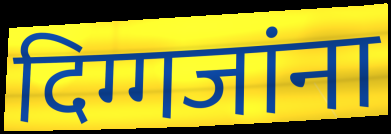
दिग्गजांना